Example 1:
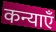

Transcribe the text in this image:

कन्याएँ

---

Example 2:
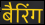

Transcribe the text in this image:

बैरिंग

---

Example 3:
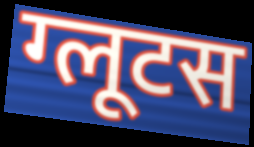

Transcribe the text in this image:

ग्लूटस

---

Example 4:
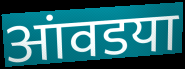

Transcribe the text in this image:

आंवडया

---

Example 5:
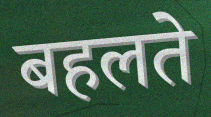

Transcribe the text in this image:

बहलते